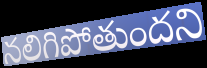
నలిగిపోతుందని